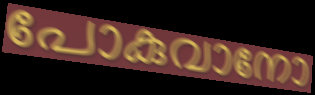
പോകുവാനോ